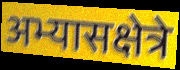
अभ्यासक्षेत्रे